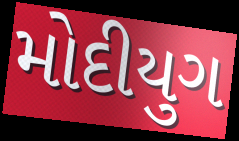
મોદીયુગ